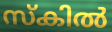
സ്കിൽ